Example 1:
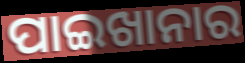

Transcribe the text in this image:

ପାଇଖାନାର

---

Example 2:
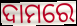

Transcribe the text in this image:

ଦାମରେ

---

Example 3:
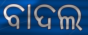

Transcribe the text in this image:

ବାଦଲ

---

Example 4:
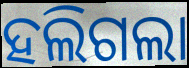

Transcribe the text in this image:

ହଲିଗଲା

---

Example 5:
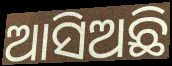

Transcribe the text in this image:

ଆସିଅଛି